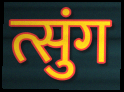
त्सुंग